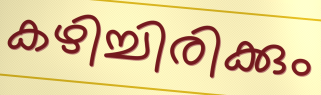
കഴിച്ചിരിക്കും